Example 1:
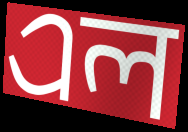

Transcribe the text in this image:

এল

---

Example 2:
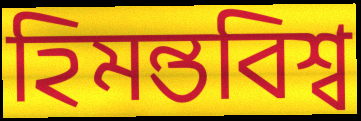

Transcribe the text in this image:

হিমন্তবিশ্ব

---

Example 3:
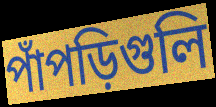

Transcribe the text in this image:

পাঁপড়িগুলি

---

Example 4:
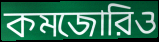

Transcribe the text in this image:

কমজোরিও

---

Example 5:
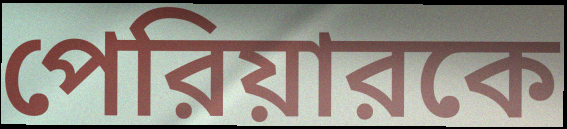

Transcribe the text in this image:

পেরিয়ারকে